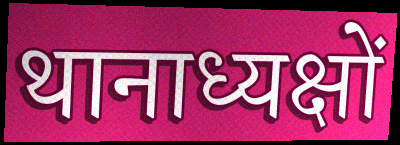
थानाध्यक्षों